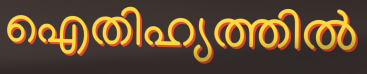
ഐതിഹ്യത്തിൽ